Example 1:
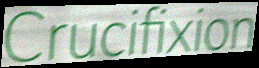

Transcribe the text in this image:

Crucifixion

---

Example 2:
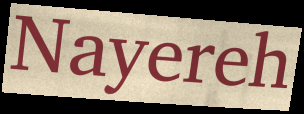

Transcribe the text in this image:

Nayereh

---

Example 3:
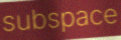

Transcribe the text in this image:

subspace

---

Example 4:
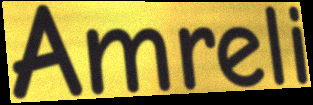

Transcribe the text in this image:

Amreli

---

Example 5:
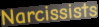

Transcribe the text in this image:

Narcissists